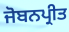
ਜੋਬਨਪ੍ਰੀਤ